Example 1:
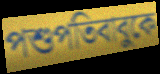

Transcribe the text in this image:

পশুপতিবাবুকে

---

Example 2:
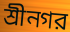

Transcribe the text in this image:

শ্রীনগর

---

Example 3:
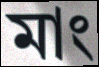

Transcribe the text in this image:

মাং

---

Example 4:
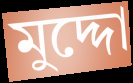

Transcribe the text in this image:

মুদ্দো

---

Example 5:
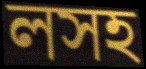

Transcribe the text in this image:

লসহ